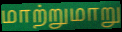
மாற்றுமாறு